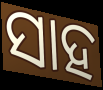
ସାହ